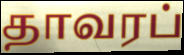
தாவரப்